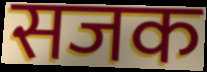
सजक